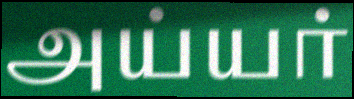
அய்யர்